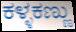
ಕಳ್ಳಕಣ್ಣು